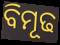
ବିମୂଢ